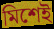
মিশেই